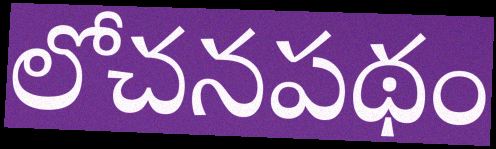
లోచనపథం